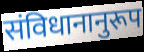
संविधानानुरूप